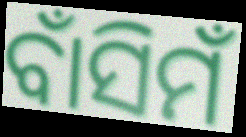
ବାଁସିମଁ